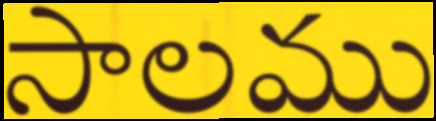
సాలము